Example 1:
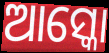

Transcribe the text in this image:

ଆସ୍କୋ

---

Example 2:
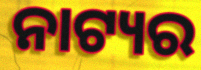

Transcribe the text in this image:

ନାଟ୍ୟର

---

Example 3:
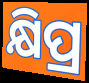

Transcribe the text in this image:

କ୍ଷିପ୍ର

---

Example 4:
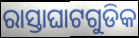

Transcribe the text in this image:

ରାସ୍ତାଘାଟଗୁଡିକ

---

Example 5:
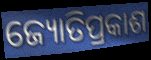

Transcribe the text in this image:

ଜ୍ୟୋତିପ୍ରକାଶ